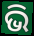
ଭି